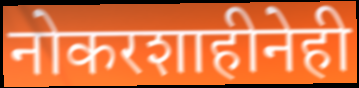
नोकरशाहीनेही